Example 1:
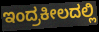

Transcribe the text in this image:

ಇಂದ್ರಕೀಲದಲ್ಲಿ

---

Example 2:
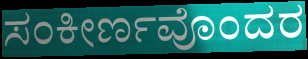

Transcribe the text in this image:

ಸಂಕೀರ್ಣವೊಂದರ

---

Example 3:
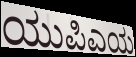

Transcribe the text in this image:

ಯುಪಿಎಯ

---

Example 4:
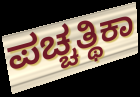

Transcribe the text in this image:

ಪಚ್ಚತ್ಥಿಕಾ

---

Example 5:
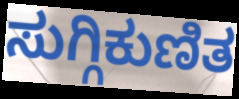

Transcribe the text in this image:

ಸುಗ್ಗಿಕುಣಿತ